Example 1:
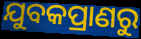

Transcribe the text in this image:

ଯୁବକପ୍ରାଣରୁ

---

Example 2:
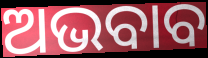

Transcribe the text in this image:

ଅଭବାବ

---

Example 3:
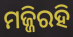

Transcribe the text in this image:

ମଜ୍ଜିରହି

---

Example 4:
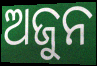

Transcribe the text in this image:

ଅଜୁନ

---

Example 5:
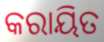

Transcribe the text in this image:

କରାୟିତ